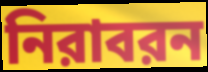
নিরাবরন